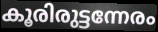
കൂരിരുട്ടന്നേരം